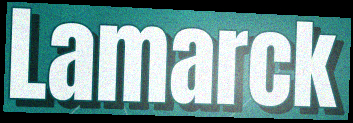
Lamarck